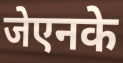
जेएनके